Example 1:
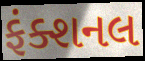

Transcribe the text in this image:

ફંક્શનલ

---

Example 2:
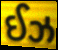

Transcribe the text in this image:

ઈઝ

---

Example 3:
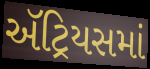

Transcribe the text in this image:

ઍટ્રિયસમાં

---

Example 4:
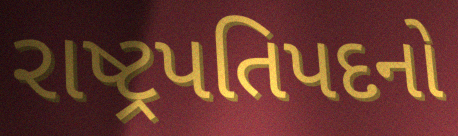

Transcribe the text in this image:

રાષ્ટ્રપતિપદનો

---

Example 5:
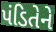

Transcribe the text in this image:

પંડિતેને